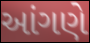
આંગણે